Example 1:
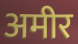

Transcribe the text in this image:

अमीर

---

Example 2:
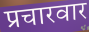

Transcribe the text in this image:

प्रचारवार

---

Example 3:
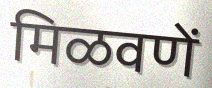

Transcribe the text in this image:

मिळवणें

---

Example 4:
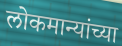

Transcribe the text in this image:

लोकमान्यांच्या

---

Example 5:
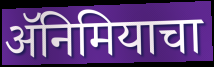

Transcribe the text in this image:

ॲनिमियाचा